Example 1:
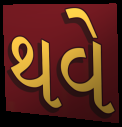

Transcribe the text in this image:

થવે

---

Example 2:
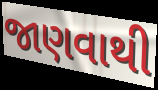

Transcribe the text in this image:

જાણવાથી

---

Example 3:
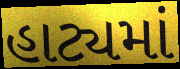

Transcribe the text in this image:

હાટ્યમાં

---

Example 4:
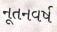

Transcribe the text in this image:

નૂતનવર્ષ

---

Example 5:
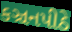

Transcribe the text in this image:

કઞ્ચનપીઠે